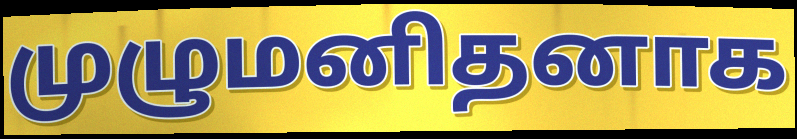
முழுமனிதனாக